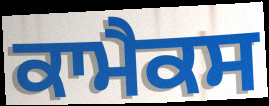
ਕਾਮੈਕਸ